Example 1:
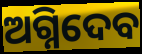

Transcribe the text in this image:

ଅଗ୍ନିଦେବ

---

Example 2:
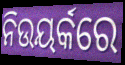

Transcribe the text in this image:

ନିଉୟର୍କରେ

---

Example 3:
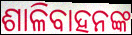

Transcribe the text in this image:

ଶାଳିବାହନଙ୍କ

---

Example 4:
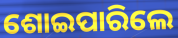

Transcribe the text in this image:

ଶୋଇପାରିଲେ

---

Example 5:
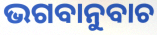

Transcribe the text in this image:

ଭଗବାନୁବାଚ